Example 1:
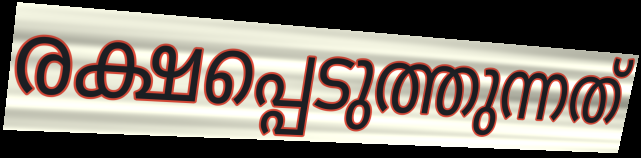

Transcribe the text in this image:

രക്ഷപ്പെടുത്തുന്നത്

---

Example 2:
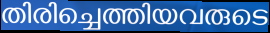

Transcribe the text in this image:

തിരിച്ചെത്തിയവരുടെ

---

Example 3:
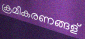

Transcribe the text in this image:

ക്രമീകരണങ്ങള്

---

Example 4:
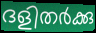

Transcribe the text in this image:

ദളിതർക്കു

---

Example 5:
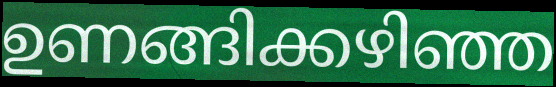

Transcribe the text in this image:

ഉണങ്ങിക്കഴിഞ്ഞ